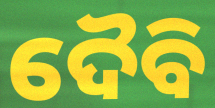
ଦୈବି